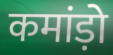
कमांड़ो